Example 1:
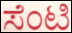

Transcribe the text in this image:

ಸೆಂಟಿ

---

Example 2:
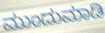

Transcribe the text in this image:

ಮುಂದುಮಾಡಿ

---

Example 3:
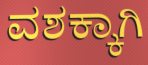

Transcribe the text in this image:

ವಶಕ್ಕಾಗಿ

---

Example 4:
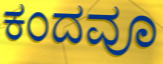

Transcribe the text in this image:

ಕಂದವೂ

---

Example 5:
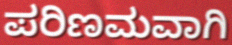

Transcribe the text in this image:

ಪರಿಣಮವಾಗಿ